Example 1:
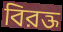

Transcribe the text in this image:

বিরক্ত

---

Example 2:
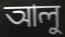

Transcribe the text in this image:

আলু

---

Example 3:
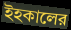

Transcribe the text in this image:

ইহকালের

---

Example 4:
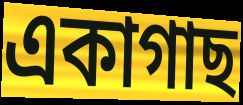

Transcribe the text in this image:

একাগাছ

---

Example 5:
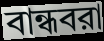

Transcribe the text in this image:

বান্ধবরা